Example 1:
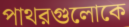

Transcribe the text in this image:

পাথরগুলোকে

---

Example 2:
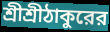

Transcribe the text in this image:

শ্রীশ্রীঠাকুরের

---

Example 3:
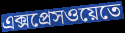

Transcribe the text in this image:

এক্সপ্রেসওয়েতে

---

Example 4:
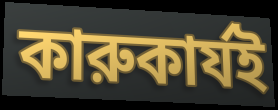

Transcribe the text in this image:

কারুকার্যই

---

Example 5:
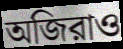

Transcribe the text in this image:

অজিরাও